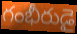
గంభీరుడై